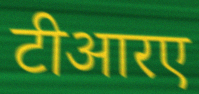
टीआरए